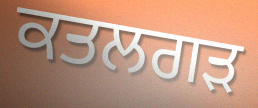
ਕਤਲਗੜ